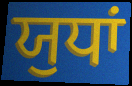
ਯੁਧਾਂ